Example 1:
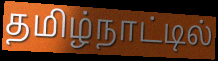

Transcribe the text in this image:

தமிழ்நாட்டில்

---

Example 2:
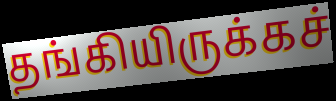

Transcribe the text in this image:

தங்கியிருக்கச்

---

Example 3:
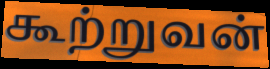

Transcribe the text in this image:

கூற்றுவன்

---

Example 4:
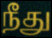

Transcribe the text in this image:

நீது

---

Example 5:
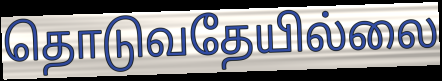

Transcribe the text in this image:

தொடுவதேயில்லை